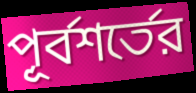
পূর্বশর্তের